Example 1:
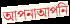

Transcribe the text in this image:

আপনাআপনি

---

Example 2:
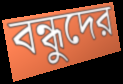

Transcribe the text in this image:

বন্ধুদের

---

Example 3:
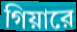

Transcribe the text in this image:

গিয়ারে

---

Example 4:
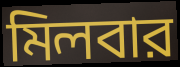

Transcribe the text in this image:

মিলবার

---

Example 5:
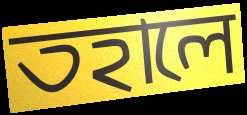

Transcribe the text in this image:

তহালে